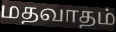
மதவாதம்